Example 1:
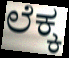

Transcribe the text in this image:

ಲೆಕ್ಕ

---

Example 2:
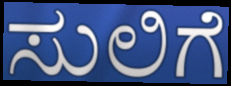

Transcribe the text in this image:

ಸುಲಿಗೆ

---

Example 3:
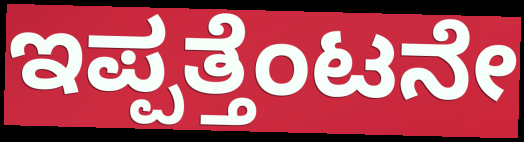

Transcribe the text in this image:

ಇಪ್ಪತ್ತೆಂಟನೇ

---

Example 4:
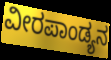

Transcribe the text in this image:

ವೀರಪಾಂಡ್ಯನ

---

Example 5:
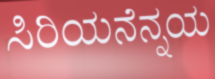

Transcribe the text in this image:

ಸಿರಿಯನೆನ್ನಯ